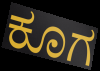
ಕೂಗ